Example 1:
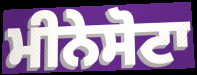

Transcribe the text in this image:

ਮੀਨੇਸੋਟਾ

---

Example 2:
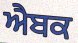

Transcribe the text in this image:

ਐਬਕ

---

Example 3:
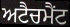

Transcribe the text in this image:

ਅਟੈਚਮੈਂਟ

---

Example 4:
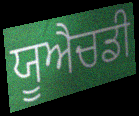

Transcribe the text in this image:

ਯੂਐਚਡੀ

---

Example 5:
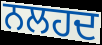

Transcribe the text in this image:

ਨਲਹਦ